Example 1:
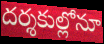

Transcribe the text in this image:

దర్శకుల్లోనూ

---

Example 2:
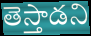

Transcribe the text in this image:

తెస్తాడని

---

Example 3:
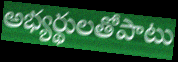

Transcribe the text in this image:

అభ్యర్థులతోపాటు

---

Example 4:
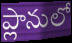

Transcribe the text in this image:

ప్లానులో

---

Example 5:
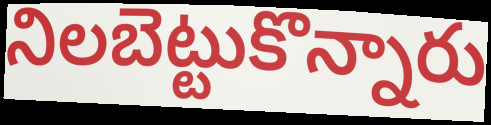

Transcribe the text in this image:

నిలబెట్టుకొన్నారు